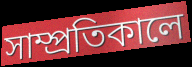
সাম্প্রতিকালে